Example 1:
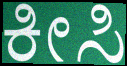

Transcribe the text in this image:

ಕೀಸಿ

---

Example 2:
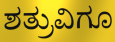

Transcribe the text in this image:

ಶತ್ರುವಿಗೂ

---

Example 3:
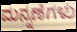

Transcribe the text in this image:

ಮನ್ನಣೆಗಳು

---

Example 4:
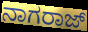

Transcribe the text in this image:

ನಾಗರಾಜ್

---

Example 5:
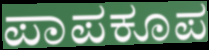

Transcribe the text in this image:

ಪಾಪಕೂಪ